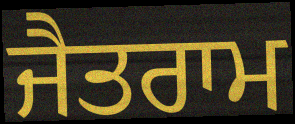
ਜੈਤਰਾਮ